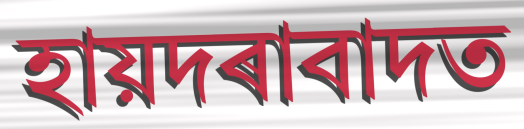
হায়দৰাবাদত